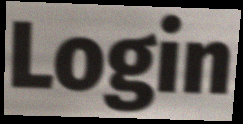
Login